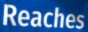
Reaches